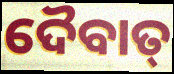
ଦୈବାତ୍